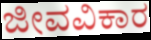
ಜೀವವಿಕಾರ